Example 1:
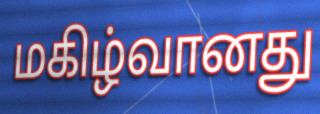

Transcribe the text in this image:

மகிழ்வானது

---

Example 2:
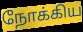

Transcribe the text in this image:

நோக்கிய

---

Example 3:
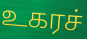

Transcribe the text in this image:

உகரச்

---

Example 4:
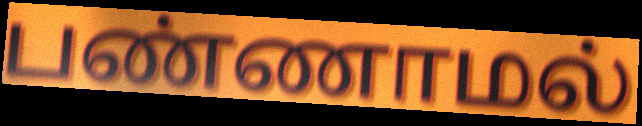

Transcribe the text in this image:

பண்ணாமல்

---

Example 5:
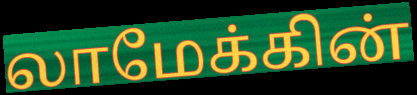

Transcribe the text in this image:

லாமேக்கின்